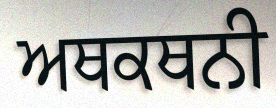
ਅਥਕਥਨੀ